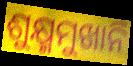
ଶୁକ୍ଷ୍ମମୁଖାନି